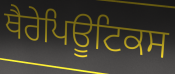
ਥੈਰੇਪਿਊਟਿਕਸ